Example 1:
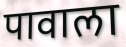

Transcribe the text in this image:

पावाला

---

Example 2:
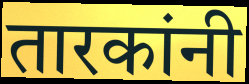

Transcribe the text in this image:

तारकांनी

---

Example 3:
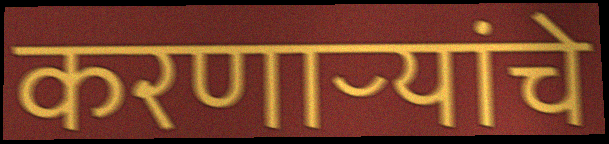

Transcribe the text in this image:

करणाऱ्यांचे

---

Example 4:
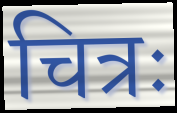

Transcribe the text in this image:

चित्रः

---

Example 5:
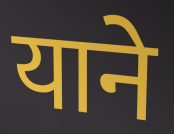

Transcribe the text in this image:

याने